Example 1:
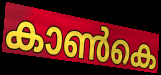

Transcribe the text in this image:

കാൺകെ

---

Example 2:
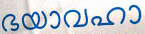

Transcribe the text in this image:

ഭയാവഹാ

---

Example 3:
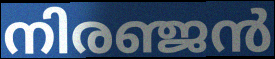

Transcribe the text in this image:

നിരഞ്ജൻ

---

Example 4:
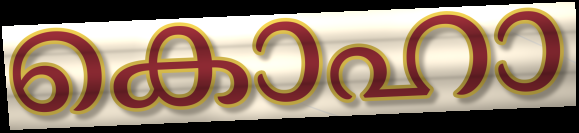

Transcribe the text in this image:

കൊഹാ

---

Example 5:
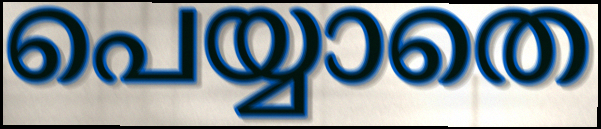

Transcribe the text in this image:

പെയ്യാതെ